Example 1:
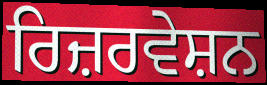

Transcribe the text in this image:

ਰਿਜ਼ਰਵੇਸ਼ਨ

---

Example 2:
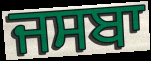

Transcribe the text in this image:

ਜਸਬਾ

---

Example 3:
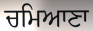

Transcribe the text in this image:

ਚਮਿਆਣਾ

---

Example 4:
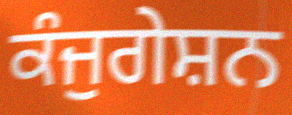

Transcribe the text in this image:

ਕੰਜੁਗੇਸ਼ਨ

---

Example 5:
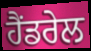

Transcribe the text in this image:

ਹੈਂਡਰੇਲ